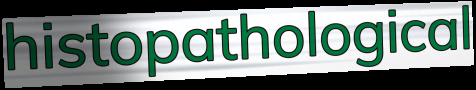
histopathological